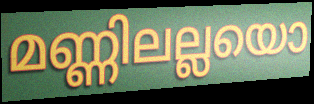
മണ്ണിലല്ലയൊ